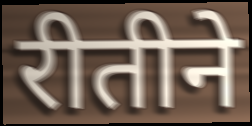
रीतीने